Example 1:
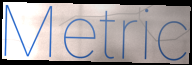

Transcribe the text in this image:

Metric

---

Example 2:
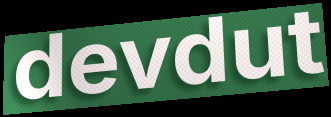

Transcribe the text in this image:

devdut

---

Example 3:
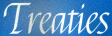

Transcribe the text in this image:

Treaties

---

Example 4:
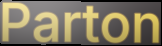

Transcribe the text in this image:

Parton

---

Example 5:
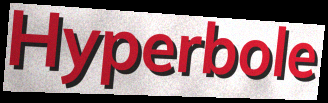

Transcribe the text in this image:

Hyperbole